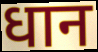
धान